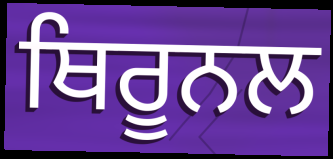
ਥਿਰੂਨਲ